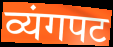
व्यंगपट